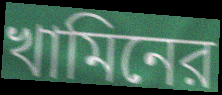
খামিনের